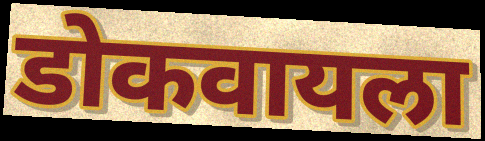
डोकवायला